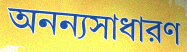
অনন্যসাধারণ